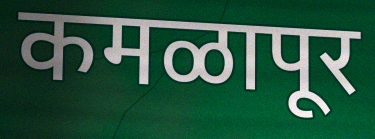
कमळापूर